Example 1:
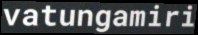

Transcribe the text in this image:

vatungamiri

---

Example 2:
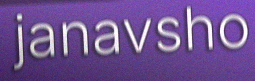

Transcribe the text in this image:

janavsho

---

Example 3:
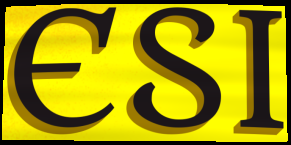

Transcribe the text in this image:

ESI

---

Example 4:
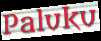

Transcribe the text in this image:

Paluku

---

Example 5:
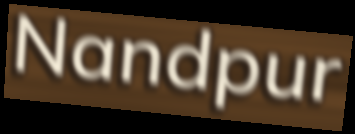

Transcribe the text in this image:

Nandpur